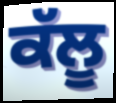
ਕੱਲੂ